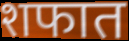
शफात